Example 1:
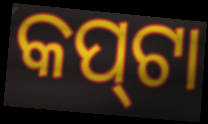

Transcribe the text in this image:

କପ୍‍ଟା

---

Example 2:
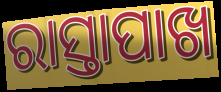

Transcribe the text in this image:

ରାସ୍ତାପାଖ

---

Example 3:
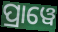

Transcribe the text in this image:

ପ୍ରାୱେ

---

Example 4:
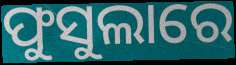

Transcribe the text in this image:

ଫୁସୁଲାରେ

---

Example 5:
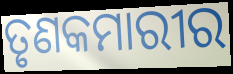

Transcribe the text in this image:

ତୃଣକମାରୀର